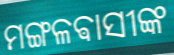
ମଙ୍ଗଳଵାସୀଙ୍କ